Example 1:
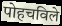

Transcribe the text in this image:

पोहचविले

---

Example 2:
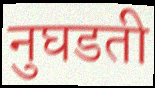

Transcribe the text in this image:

नुघडती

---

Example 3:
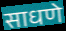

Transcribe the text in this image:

साधणे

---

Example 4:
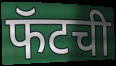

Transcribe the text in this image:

फॅटची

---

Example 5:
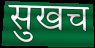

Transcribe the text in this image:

सुखच